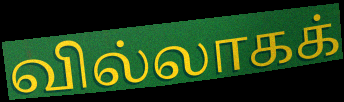
வில்லாகக்